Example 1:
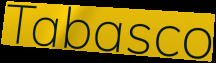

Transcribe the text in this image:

Tabasco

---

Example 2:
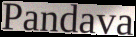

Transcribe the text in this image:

Pandava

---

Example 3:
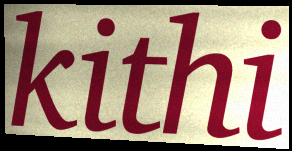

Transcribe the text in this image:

kithi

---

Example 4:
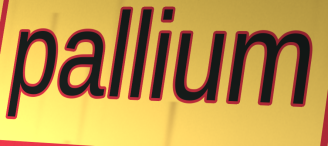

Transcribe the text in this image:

pallium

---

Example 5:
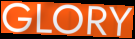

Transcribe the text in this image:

GLORY